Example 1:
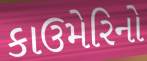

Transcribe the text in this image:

કાઉમેરિનો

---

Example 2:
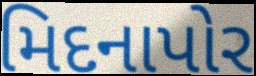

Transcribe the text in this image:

મિદનાપોર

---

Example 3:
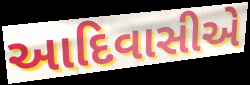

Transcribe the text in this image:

આદિવાસીએ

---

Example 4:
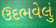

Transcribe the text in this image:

ઉદભવેલું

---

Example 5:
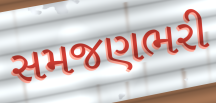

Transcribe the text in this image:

સમજણભરી